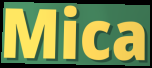
Mica